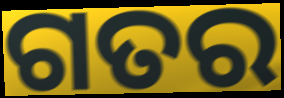
ଗତର